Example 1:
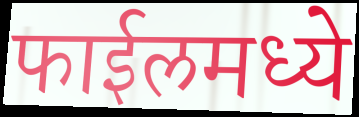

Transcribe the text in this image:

फाईलमध्ये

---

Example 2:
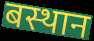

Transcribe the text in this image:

बस्थान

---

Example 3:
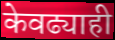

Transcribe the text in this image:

केवढ्याही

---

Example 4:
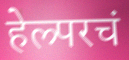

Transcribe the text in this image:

हेल्परचं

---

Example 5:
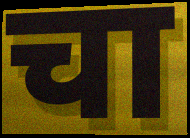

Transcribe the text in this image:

चा